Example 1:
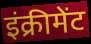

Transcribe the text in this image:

इंक्रीमेंट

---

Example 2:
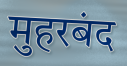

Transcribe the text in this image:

मुहरबंद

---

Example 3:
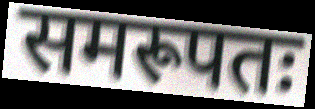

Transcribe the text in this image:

समरूपतः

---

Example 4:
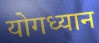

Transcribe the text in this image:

योगध्यान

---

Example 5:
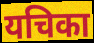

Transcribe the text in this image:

यचिका